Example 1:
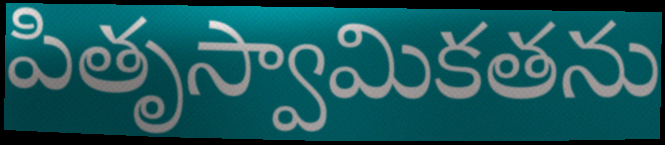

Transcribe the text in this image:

పితృస్వామికతను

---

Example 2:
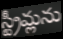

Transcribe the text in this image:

స్ట్రీమ్లను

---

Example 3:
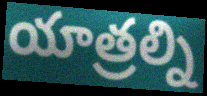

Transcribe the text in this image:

యాత్రల్ని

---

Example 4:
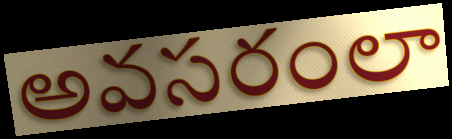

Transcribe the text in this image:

అవసరంలా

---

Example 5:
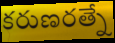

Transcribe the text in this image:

కరుణరత్నే